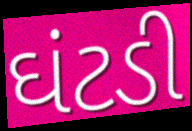
ઘંટડી